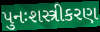
પુનઃશસ્ત્રીકરણ